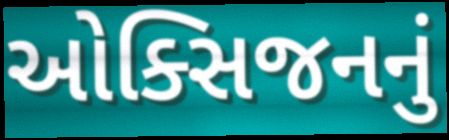
ઓક્સિજનનું